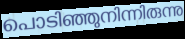
പൊടിഞ്ഞുനിന്നിരുന്നു